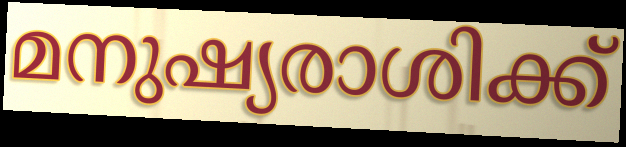
മനുഷ്യരാശിക്ക്